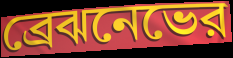
ব্রেঝনেভের